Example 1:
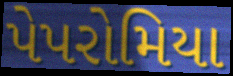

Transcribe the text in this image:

પેપરોમિયા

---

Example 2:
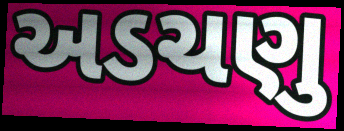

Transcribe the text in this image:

અડચણુ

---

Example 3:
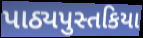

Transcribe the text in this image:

પાઠ્યપુસ્તકિયા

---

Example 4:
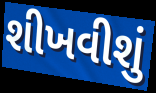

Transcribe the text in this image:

શીખવીશું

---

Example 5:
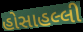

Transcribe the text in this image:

હોસાહલ્લી